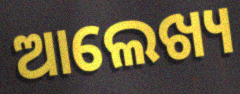
ଆଲେଖ୍ୟ